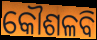
କୌଶଳବି